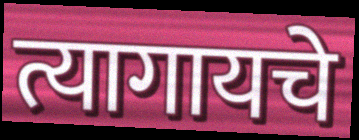
त्यागायचे